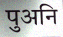
पुअनि